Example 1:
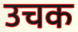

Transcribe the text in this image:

उचक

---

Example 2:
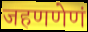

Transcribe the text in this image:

जहणणेणं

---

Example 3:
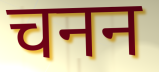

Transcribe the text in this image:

चनन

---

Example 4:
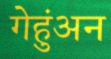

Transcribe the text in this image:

गेहुंअन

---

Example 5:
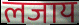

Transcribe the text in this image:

लजाय